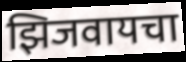
झिजवायचा